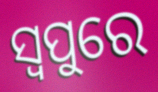
ସ୍ୱପୁରେ